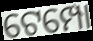
ଟେମ୍ପୋ